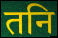
तनि